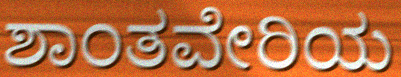
ಶಾಂತವೇರಿಯ